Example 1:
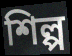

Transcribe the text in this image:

শিল্প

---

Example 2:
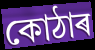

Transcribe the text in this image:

কোঠাৰ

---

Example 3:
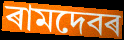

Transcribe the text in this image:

ৰামদেবৰ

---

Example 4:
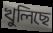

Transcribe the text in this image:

খুলিছে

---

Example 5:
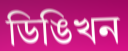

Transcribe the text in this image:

ডিঙিখন